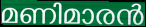
മണിമാരൻ